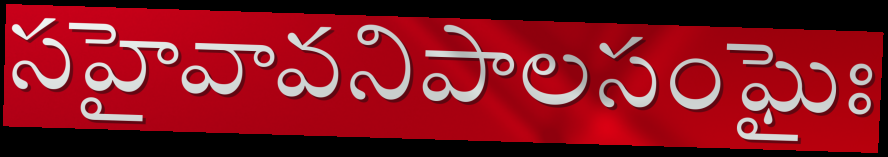
సహైవావనిపాలసంఘైః